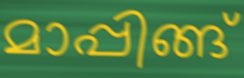
മാപ്പിങ്ങ്